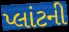
પ્લાંટની